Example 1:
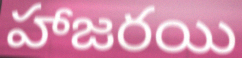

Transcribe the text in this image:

హాజరయి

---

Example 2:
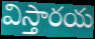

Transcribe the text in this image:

విస్తారయ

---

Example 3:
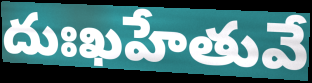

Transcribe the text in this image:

దుఃఖహేతువే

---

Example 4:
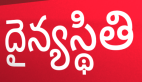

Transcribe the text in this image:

దైన్యస్థితి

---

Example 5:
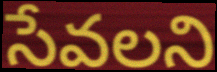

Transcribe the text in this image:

సేవలని